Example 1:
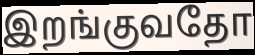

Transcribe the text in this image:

இறங்குவதோ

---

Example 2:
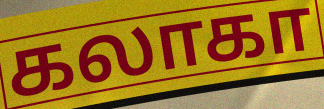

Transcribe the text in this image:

கலாகா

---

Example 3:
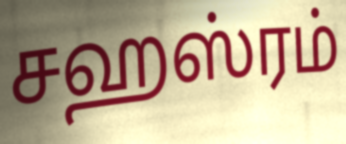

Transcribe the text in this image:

சஹஸ்ரம்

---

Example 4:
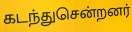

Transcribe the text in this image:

கடந்துசென்றனர்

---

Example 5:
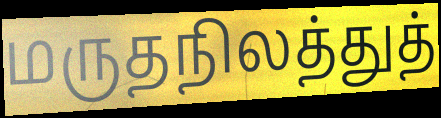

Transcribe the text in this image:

மருதநிலத்துத்